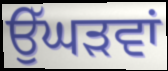
ਉੱਘੜਵਾਂ